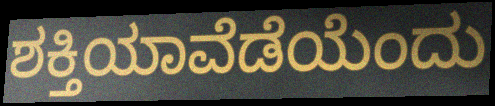
ಶಕ್ತಿಯಾವೆಡೆಯೆಂದು